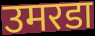
उमरडा